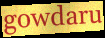
gowdaru